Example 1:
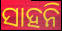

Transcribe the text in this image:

ସାହନି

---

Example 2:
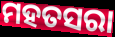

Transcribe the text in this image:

ମହତସରା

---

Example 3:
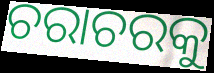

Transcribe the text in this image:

ଚରାଚରକୁ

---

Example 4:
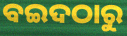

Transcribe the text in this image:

ବଇଦଠାରୁ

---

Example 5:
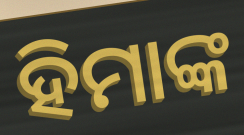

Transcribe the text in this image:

ହିମାଙ୍କ